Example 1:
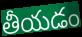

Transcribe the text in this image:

తీయడం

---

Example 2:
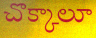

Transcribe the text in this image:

చొక్కాలూ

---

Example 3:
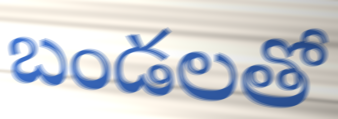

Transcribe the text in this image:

బండలతో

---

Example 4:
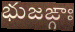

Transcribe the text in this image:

భుజఙ్గాః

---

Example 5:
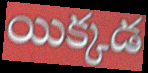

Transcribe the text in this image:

యిక్కడ